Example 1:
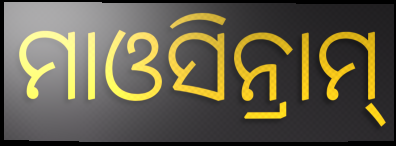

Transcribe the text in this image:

ମାଓସିନ୍ରାମ୍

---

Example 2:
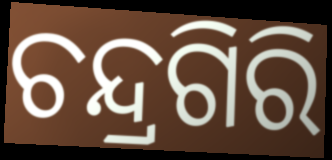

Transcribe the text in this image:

ଚନ୍ଦ୍ରଗିରି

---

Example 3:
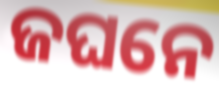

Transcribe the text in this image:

ଜଘନେ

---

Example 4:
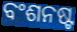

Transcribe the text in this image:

ବଂଶନଷ୍ଟ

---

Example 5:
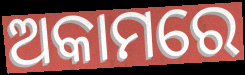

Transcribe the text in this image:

ଅକାମରେ